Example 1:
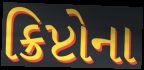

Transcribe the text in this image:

ક્રિપ્ટોના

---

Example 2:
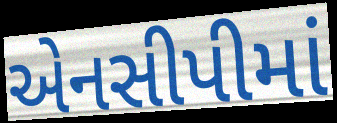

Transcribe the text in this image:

એનસીપીમાં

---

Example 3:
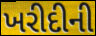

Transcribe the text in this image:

ખરીદીની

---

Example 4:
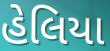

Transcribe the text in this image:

હેલિયા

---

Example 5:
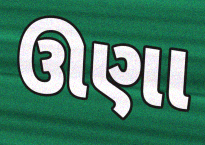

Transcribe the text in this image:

ઊણા